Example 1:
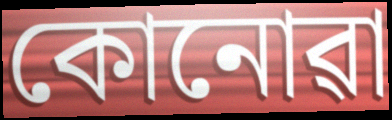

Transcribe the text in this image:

কোনোৱা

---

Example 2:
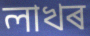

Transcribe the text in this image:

লাখৰ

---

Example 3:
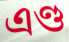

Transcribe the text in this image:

এণ্ড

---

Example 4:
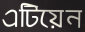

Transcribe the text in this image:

এটিয়েন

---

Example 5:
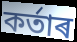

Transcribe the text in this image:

কৰ্তাৰ